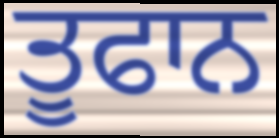
ਤੂਫਾਨ